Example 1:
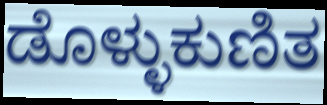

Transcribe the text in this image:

ಡೊಳ್ಳುಕುಣಿತ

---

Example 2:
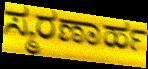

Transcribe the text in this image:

ಸ್ಮರಣಾರ್ಹ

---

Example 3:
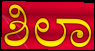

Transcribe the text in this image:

ಶಿಲಾ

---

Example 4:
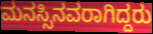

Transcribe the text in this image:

ಮನಸ್ಸಿನವರಾಗಿದ್ದರು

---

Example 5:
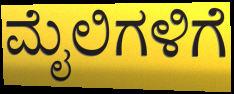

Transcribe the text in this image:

ಮೈಲಿಗಳಿಗೆ